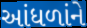
આંધળાંને